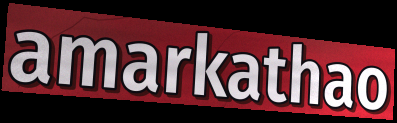
amarkathao